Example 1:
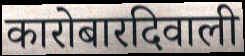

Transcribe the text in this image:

कारोबारदिवाली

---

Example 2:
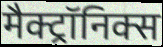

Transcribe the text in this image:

मैक्ट्रॉनिक्स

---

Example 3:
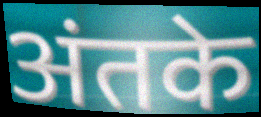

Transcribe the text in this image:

अंतके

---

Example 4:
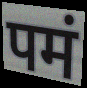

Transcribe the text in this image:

पमं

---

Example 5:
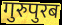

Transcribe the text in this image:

गुरुपुरब